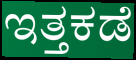
ಇತ್ತಕಡೆ